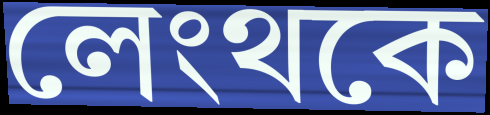
লেংথকে